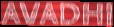
AVADHI